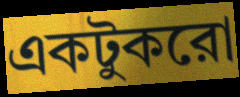
একটুকরো